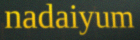
nadaiyum